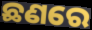
ଛଣରେ